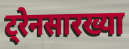
ट्रेनसारख्या